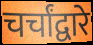
चर्चांद्वारे